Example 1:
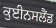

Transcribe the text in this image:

ਕੁਈਨਸਲੈਂਡ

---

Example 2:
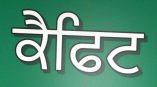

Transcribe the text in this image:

ਕੈਫਿਟ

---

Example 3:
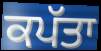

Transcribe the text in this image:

ਕਪੱਤਾ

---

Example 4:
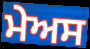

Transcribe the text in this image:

ਮੇਅਸ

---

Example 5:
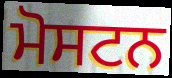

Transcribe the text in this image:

ਮੋਸਟਨ